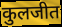
कुलजीत